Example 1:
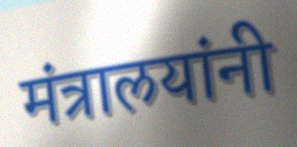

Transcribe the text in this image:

मंत्रालयांनी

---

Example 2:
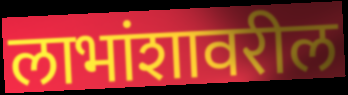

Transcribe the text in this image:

लाभांशावरील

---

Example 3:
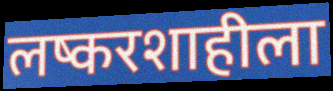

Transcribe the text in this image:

लष्करशाहीला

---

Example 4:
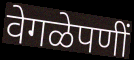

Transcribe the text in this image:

वेगळेपणीं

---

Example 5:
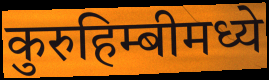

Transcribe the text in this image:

कुरुहिम्बीमध्ये